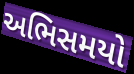
અભિસમયો